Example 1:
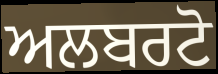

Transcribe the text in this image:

ਅਲਬਰਟੋ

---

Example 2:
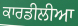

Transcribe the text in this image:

ਕਾਰਡੀਲੀਆ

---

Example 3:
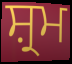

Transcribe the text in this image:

ਸ਼੍ਰਮ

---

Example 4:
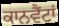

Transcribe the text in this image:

ਕਾਨਵੈਂਟਾਂ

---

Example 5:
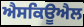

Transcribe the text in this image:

ਐਸਕਿਊਐਲ